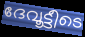
ദേവൂട്ടീടെ